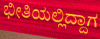
ಭೀತಿಯಲ್ಲಿದ್ದಾಗ